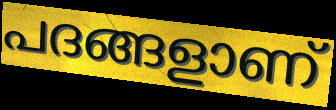
പദങ്ങളാണ്